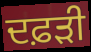
ਦਫ਼ੜੀ